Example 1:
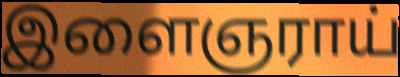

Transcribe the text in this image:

இளைஞராய்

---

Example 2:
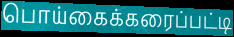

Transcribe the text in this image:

பொய்கைக்கரைப்பட்டி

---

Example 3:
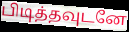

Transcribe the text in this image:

பிடித்தவுடனே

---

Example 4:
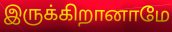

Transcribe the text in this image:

இருக்கிறானாமே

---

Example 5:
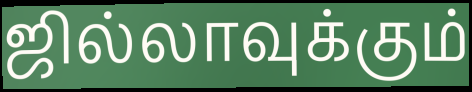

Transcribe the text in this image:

ஜில்லாவுக்கும்